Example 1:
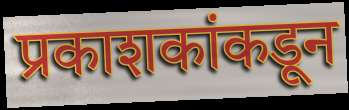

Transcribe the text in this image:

प्रकाशकांकडून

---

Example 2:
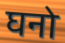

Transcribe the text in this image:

घनो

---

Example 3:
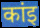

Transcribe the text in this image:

कांइ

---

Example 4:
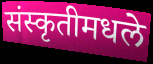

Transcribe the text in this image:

संस्कृतीमधले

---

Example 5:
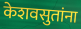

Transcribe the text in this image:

केशवसुतांना